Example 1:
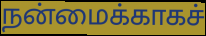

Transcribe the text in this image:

நன்மைக்காகச்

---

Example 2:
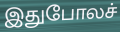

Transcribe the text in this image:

இதுபோலச்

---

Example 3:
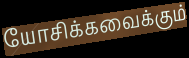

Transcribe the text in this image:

யோசிக்கவைக்கும்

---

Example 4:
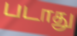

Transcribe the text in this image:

படாது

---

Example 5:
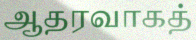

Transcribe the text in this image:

ஆதரவாகத்